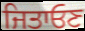
ਜਿਤਾਓਣ